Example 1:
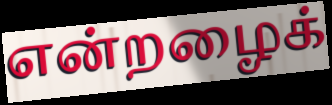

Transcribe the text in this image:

என்றழைக்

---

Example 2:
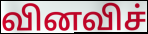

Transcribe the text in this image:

வினவிச்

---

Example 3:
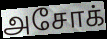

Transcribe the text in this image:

அசோக்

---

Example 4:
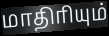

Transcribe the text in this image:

மாதிரியும்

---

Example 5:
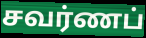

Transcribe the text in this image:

சவர்ணப்